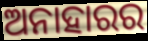
ଅନାହାରର